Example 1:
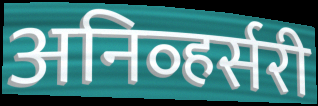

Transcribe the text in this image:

अनिव्हर्सरी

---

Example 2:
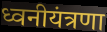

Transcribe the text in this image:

ध्वनीयंत्रणा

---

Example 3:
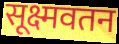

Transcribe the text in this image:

सूक्ष्मवतन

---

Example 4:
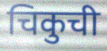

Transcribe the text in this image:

चिकुची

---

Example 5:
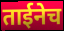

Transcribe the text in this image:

ताईनेच